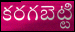
కరగబెట్టి